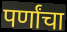
पर्णांचा